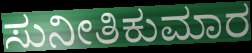
ಸುನೀತಿಕುಮಾರ